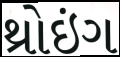
થ્રોઇંગ